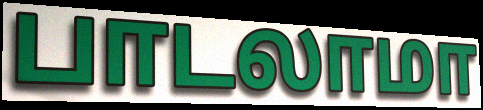
பாடலாமா